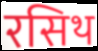
रसिथ